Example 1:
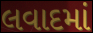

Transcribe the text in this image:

લવાદમાં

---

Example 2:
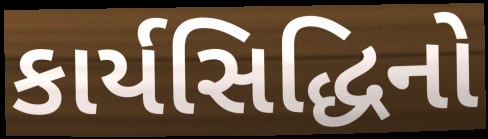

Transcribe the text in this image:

કાર્યસિદ્ધિનો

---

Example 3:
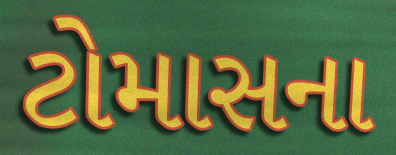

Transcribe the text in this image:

ટોમાસના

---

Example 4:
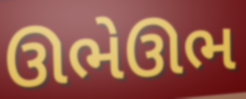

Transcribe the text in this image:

ઊભેઊભ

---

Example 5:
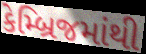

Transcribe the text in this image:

કેમ્બ્રિજમાંથી